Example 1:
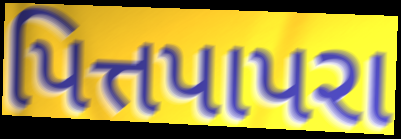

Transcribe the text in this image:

પિત્તપાપરા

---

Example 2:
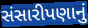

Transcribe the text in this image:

સંસારીપણાનું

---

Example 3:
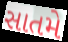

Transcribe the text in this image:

સાતમે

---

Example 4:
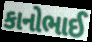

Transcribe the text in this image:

કાનોભાઈ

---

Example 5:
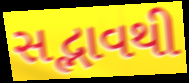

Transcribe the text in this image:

સદ્ભાવથી